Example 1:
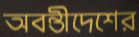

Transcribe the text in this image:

অবন্তীদেশের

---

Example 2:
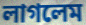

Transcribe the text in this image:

লাগলেম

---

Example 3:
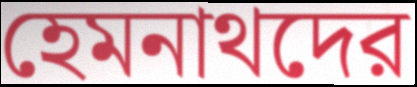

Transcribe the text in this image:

হেমনাথদের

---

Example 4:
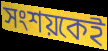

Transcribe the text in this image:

সংশয়কেই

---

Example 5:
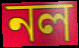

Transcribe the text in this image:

নল